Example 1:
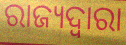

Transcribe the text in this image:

ରାଜ୍ୟଦ୍ୱାରା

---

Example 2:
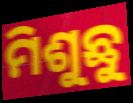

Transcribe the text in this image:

ମିଶୁଛୁ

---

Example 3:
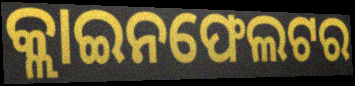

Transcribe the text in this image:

କ୍ଲାଇନଫେଲଟର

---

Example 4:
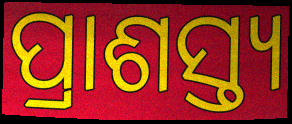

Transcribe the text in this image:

ପ୍ରାଶସ୍ତ୍ୟ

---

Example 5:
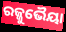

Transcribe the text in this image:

ରଜ୍ଜୁଭୈୟା